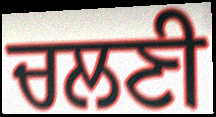
ਚਲਣੀ